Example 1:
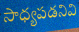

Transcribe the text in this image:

సాధ్యపడనివి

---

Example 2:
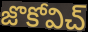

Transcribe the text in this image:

జొకోవిచ్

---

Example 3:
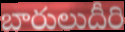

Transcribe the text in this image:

బారులుదీరి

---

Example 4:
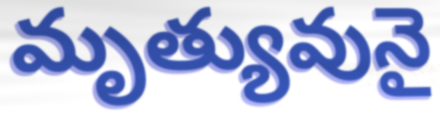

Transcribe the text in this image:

మృత్యువునై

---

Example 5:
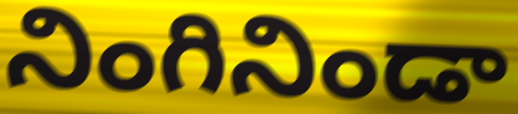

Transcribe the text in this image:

నింగినిండా